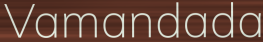
Vamandada